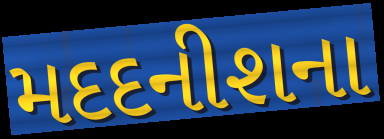
મદદનીશના